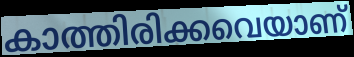
കാത്തിരിക്കവെയാണ്